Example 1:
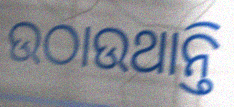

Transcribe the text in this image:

ଉଠାଉଥାନ୍ତି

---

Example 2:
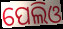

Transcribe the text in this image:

ପେଲିଓ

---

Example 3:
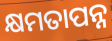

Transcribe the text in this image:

କ୍ଷମତାପନ୍ନ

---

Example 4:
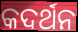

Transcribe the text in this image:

କଦର୍ଥନ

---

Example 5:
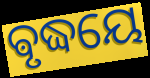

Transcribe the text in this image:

ଵୃଦ୍ଧୟେ